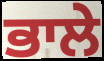
ਭਾਲੇ